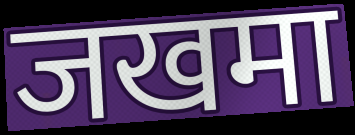
जखमा